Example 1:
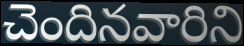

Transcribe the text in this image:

చెందినవారిని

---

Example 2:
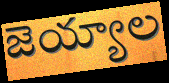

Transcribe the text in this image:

జెయ్యాల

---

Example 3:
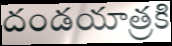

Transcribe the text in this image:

దండయాత్రకి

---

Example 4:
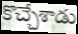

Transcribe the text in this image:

కొచ్చేశాడు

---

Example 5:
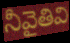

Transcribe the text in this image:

నీవైతివి